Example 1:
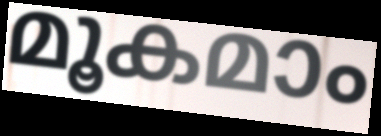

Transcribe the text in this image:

മൂകമാം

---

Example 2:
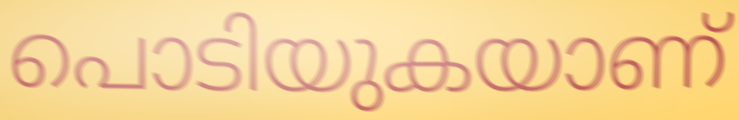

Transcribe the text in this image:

പൊടിയുകയാണ്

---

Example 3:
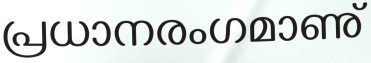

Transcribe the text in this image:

പ്രധാനരംഗമാണു്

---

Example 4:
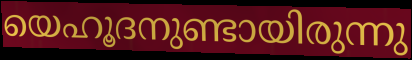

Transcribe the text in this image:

യെഹൂദനുണ്ടായിരുന്നു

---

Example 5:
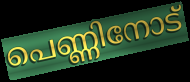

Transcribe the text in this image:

പെണ്ണിനോട്